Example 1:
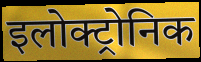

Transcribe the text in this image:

इलोक्ट्रोनिक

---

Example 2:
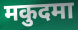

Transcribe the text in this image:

मकुदमा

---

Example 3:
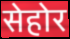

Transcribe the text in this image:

सेहोर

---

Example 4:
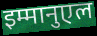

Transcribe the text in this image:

इम्मानुएल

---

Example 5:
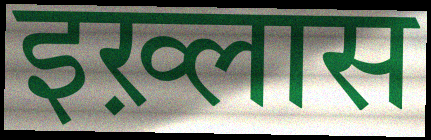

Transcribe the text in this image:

इख़्लास